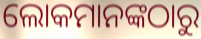
ଲୋକମାନଙ୍କଠାରୁ